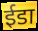
ईडा